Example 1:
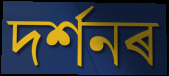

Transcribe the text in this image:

দৰ্শনৰ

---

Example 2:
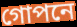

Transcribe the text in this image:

গোপনে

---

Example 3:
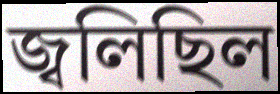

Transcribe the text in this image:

জ্বলিছিল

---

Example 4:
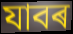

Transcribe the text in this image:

যাবৰ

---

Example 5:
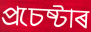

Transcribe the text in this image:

প্ৰচেষ্টাৰ